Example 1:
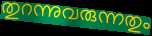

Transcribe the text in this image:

തുറന്നുവരുന്നതും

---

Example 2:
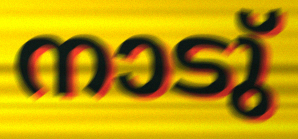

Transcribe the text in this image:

നാടു്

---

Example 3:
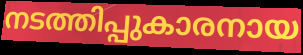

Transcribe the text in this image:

നടത്തിപ്പുകാരനായ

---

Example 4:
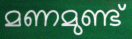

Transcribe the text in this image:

മണമുണ്ട്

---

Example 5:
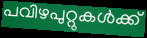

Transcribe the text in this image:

പവിഴപുറ്റുകൾക്ക്